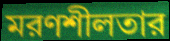
মরণশীলতার